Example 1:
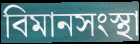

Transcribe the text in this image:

বিমানসংস্থা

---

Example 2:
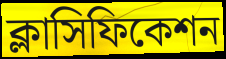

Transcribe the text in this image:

ক্লাসিফিকেশন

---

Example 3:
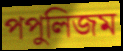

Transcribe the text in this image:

পপুলিজম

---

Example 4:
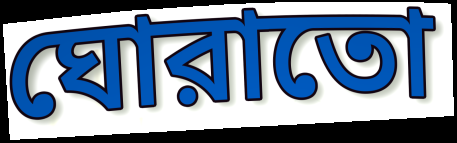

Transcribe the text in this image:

ঘোরাতো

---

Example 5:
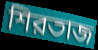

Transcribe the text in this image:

শিরতাজ